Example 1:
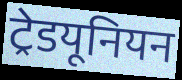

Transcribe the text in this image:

ट्रेडयूनियन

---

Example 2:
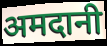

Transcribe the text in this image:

अमदानी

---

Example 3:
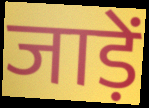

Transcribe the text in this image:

जाड़ें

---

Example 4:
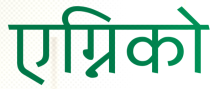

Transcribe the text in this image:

एग्निको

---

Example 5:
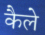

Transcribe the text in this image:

कैले